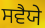
ਸਵੈਯੇ